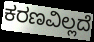
ಕರಣವಿಲ್ಲದೆ